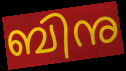
ബിനു